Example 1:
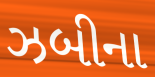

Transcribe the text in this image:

ઝબીના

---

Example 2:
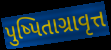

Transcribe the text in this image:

પુષ્પિતાગ્રાવૃત્ત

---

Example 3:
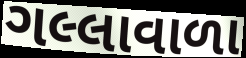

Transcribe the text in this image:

ગલ્લાવાળા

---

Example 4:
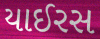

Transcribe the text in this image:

યાઈરસ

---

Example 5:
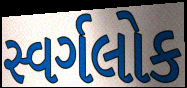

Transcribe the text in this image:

સ્વર્ગલોક